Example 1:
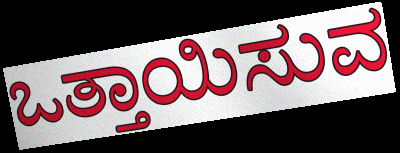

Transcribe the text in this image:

ಒತ್ತಾಯಿಸುವ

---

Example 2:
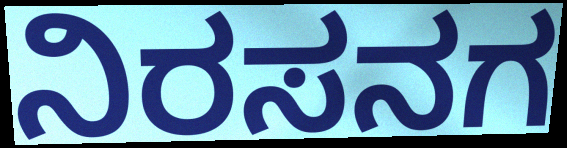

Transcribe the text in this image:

ನಿರಸನಗ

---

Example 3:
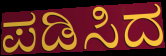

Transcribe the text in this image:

ಪಡಿಸಿದ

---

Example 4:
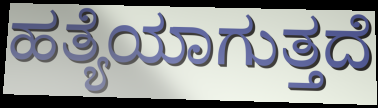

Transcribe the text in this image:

ಹತ್ಯೆಯಾಗುತ್ತದೆ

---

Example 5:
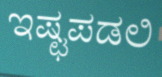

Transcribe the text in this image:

ಇಷ್ಟಪಡಲಿ